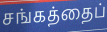
சங்கத்தைப்